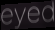
eyed